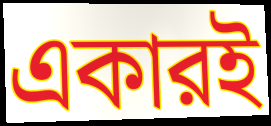
একারই